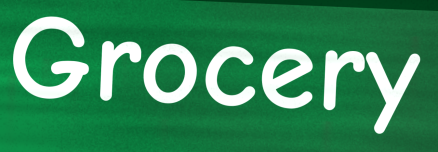
Grocery